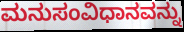
ಮನುಸಂವಿಧಾನವನ್ನು